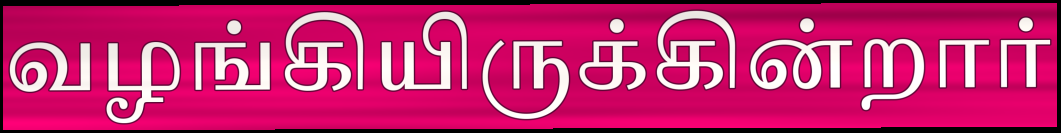
வழங்கியிருக்கின்றார்